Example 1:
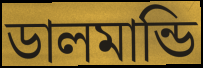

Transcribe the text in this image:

ডালমান্ডি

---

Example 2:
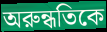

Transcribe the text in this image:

অরুন্ধতিকে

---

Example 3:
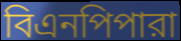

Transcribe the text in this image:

বিএনপিপারা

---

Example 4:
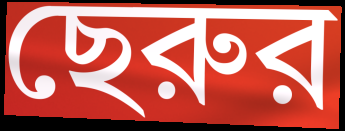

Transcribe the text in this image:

ছেরুর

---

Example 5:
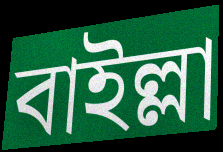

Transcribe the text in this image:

বাইল্লা